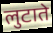
लुटाते